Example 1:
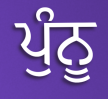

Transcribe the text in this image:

ਪੁੰਨੂ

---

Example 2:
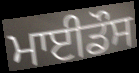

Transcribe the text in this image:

ਮਾਈਡੌਸ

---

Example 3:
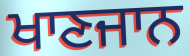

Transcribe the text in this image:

ਖਾਣਜਾਨ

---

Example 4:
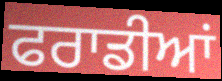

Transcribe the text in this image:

ਫਰਾਡੀਆਂ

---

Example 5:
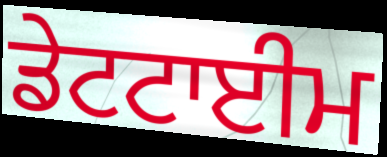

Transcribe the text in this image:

ਡੇਟਟਾਈਮ